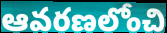
ఆవరణలోంచి